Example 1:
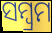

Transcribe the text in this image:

ସମ୍ବ୍ରମ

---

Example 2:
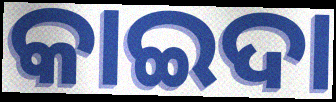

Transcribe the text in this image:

କାଇଦା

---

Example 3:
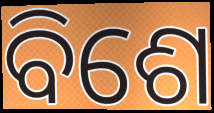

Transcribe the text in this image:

ବିଶେ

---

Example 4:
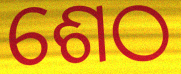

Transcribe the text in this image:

ଶେଠ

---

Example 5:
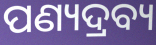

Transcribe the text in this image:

ପଣ୍ୟଦ୍ରବ୍ୟ